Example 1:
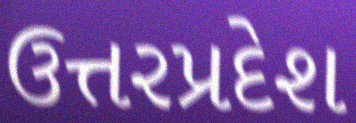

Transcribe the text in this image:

ઉત્તરપ્રદેશ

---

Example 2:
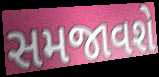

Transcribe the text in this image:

સમજાવશે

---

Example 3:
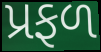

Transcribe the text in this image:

પ્રફળ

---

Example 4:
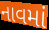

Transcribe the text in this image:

નાવમાં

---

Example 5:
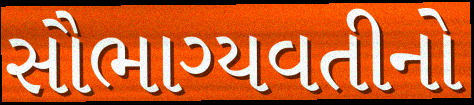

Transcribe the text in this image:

સૌભાગ્યવતીનો